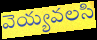
వెయ్యవలసి